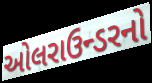
ઓલરાઉન્ડરનો